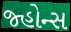
જ્હોન્સ